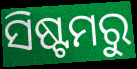
ସିଷ୍ଟମରୁ